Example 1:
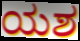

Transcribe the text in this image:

ಯಶ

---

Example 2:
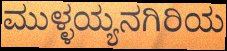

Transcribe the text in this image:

ಮುಳ್ಳಯ್ಯನಗಿರಿಯ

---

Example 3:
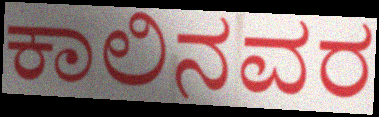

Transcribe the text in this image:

ಕಾಲಿನವರ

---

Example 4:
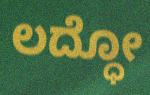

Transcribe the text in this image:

ಲದ್ಧೋ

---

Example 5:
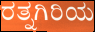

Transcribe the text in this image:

ರತ್ನಗಿರಿಯ